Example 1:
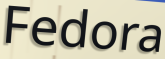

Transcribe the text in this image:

Fedora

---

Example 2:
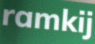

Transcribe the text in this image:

ramkij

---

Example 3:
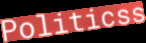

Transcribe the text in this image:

Politicss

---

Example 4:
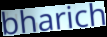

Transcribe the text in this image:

bharich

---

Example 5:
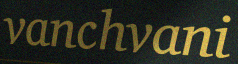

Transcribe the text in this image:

vanchvani